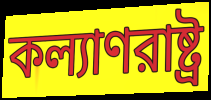
কল্যাণরাষ্ট্র